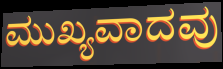
ಮುಖ್ಯವಾದವು